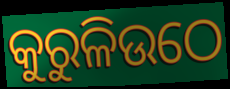
କୁରୁଳିଉଠେ